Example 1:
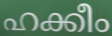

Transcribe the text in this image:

ഹക്കീം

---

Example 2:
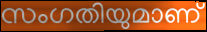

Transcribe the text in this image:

സംഗതിയുമാണ്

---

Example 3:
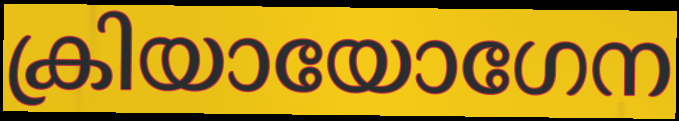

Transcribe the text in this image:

ക്രിയായോഗേന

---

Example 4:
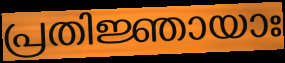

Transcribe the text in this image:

പ്രതിജ്ഞായാഃ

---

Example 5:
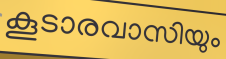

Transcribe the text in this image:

കൂടാരവാസിയും